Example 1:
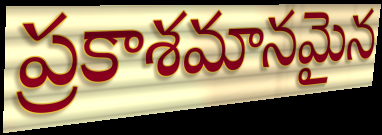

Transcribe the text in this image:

ప్రకాశమానమైన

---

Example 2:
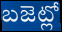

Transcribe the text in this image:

బజెట్లో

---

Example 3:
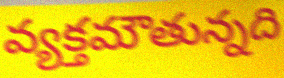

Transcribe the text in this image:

వ్యక్తమౌతున్నది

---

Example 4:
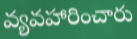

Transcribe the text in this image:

వ్యవహారించారు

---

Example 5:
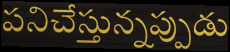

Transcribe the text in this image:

పనిచేస్తున్నప్పుడు